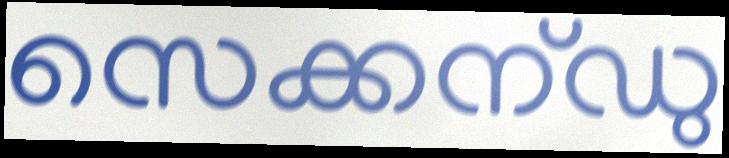
സെക്കന്ഡു